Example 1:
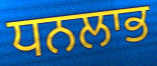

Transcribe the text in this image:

ਧਨਲਾਭ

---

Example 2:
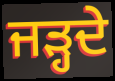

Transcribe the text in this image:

ਜੜ੍ਹਦੇ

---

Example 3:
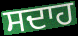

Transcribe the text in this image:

ਸਦਾਹ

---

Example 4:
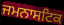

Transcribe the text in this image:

ਜਮਨਾਸਟਿਕ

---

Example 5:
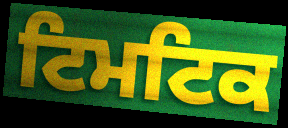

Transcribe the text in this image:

ਟਿਮਟਿਕ